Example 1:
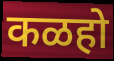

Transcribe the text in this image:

कळहो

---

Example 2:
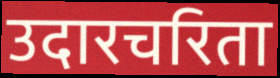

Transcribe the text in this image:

उदारचरिता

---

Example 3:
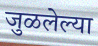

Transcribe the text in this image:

जुळलेल्या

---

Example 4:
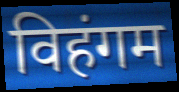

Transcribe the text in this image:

विहंगम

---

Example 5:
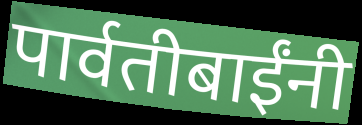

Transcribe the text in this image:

पार्वतीबाईंनी